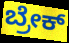
ಬ್ರೇಕ್